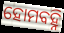
ହୋମବହ୍ନି